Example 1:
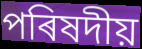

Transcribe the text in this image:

পৰিষদীয়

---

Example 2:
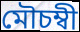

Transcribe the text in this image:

মৌচম্বী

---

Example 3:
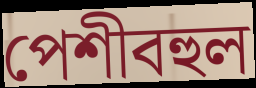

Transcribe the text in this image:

পেশীবহুল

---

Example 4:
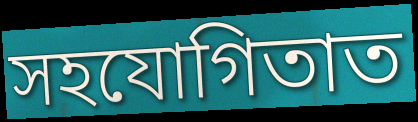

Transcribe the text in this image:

সহযোগিতাত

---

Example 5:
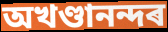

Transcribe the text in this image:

অখণ্ডানন্দৰ